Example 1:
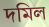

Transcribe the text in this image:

দমিল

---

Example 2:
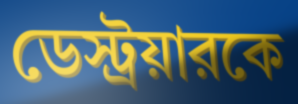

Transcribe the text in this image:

ডেস্ট্রয়ারকে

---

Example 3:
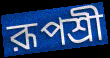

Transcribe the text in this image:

রূপশ্রী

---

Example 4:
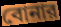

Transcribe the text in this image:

বোনার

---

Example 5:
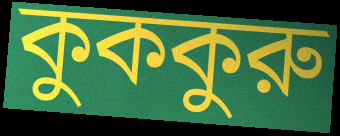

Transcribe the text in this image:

কুককুরু